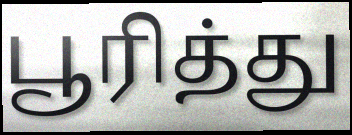
பூரித்து